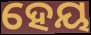
ହେୟ